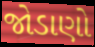
જોડાણો